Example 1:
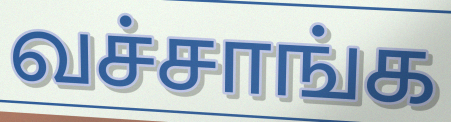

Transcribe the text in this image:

வச்சாங்க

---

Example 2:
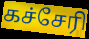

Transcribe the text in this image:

கச்சேரி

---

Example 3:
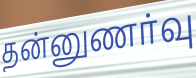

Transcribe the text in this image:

தன்னுணர்வு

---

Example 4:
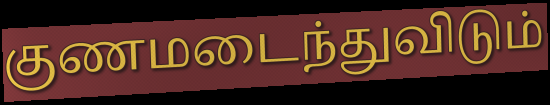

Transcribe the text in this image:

குணமடைந்துவிடும்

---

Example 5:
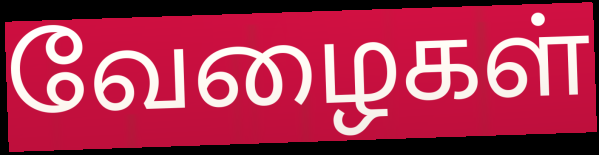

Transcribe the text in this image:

வேழைகள்